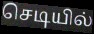
செடியில்